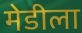
मेडीला